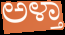
ಅಳ್ತಾ